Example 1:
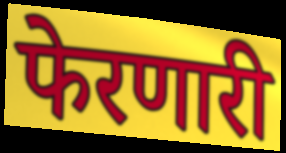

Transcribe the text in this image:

फेरणारी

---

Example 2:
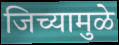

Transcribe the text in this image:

जिच्यामुळे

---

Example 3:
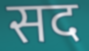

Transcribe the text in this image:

सद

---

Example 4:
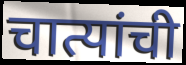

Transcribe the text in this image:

चात्यांची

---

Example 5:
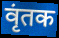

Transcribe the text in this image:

वृंतक